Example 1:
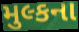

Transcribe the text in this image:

મુલ્કના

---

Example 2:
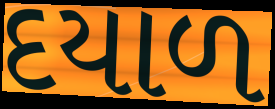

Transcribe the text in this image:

દયાળ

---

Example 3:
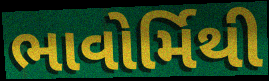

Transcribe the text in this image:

ભાવોર્મિથી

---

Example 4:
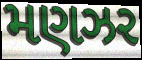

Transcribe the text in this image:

મણઝર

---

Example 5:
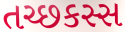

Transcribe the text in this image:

તચ્છકસ્સ